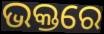
ଭକ୍ତରେ